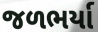
જળભર્યા